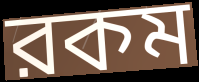
রকম